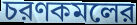
চরণকমলের